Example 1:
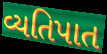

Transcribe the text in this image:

વ્યતિપાત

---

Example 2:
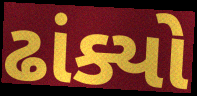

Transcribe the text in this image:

ઢાંક્યો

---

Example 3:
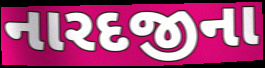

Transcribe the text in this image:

નારદજીના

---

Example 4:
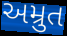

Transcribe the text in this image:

અમ્રુત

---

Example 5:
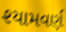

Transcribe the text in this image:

શ્યામવર્ણ